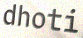
dhoti